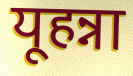
यूहन्ना